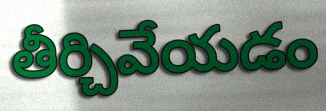
తీర్చివేయడం